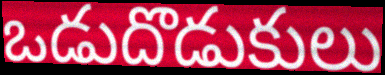
ఒడుదొడుకులు